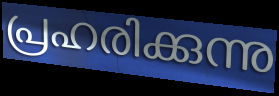
പ്രഹരിക്കുന്നു